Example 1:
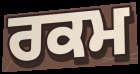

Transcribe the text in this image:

ਰਕਮ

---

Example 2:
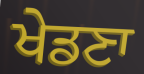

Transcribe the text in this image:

ਖੇਡਣਾ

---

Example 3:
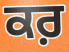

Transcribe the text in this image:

ਕਰ਼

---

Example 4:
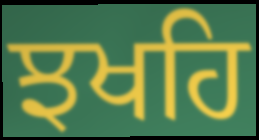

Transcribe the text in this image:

ਝਖਹਿ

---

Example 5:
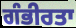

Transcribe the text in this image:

ਗੰਭੀਰਤਾ